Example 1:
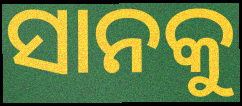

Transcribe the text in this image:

ସାନକୁ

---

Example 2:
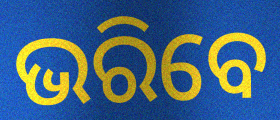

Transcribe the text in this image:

ଭରିବେ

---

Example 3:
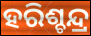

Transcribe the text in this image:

ହରିଶ୍ଚନ୍ଦ୍ର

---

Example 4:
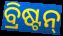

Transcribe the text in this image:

ବ୍ରିଷ୍ଟନ୍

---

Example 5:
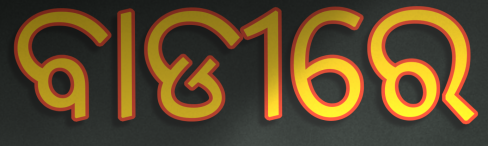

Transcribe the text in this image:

ବାଡୀରେ